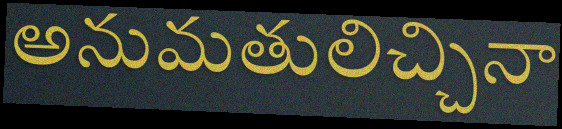
అనుమతులిచ్చినా